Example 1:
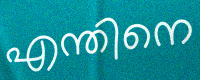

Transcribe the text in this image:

എന്തിനെ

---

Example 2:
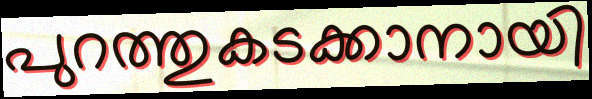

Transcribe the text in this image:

പുറത്തുകടക്കാനായി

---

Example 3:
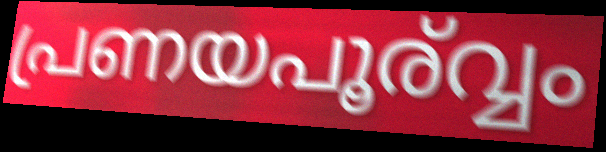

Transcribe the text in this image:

പ്രണയപൂര്വ്വം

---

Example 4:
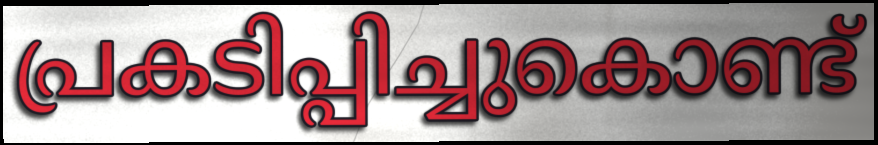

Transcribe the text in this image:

പ്രകടിപ്പിച്ചുകൊണ്ട്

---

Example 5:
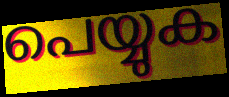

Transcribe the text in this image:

പെയ്യുക